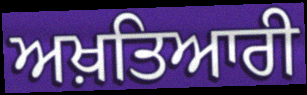
ਅਖ਼ਤਿਆਰੀ